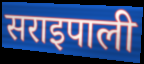
सराइपाली